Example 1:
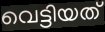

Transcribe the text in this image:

വെട്ടിയത്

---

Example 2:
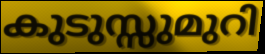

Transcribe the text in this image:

കുടുസ്സുമുറി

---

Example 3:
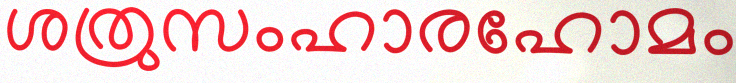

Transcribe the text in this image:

ശത്രുസംഹാരഹോമം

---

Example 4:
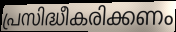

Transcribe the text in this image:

പ്രസിദ്ധീകരിക്കണം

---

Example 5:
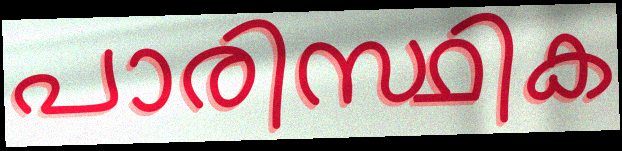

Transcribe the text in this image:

പാരിസ്ഥിക